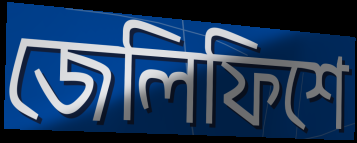
জেলিফিশে